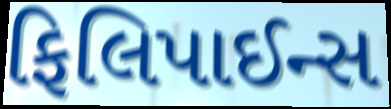
ફિલિપાઈન્સ